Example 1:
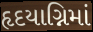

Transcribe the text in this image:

હૃદયાગ્નિમાં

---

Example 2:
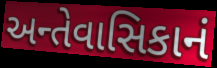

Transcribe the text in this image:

અન્તેવાસિકાનં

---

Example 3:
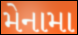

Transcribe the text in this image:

મેનામા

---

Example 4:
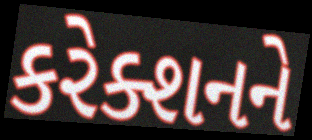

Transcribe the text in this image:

કરેક્શનને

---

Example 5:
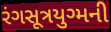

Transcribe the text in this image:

રંગસૂત્રયુગ્મની